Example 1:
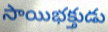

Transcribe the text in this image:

సాయిభక్తుడు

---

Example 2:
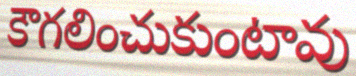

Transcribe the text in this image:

కౌగలించుకుంటావు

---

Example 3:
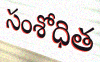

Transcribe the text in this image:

సంశోధిత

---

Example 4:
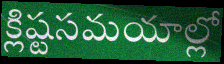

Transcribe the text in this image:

క్లిష్టసమయాల్లో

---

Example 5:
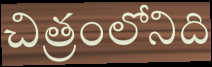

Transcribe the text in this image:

చిత్రంలోనిది